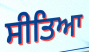
ਸੀਤਿਆ